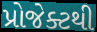
પ્રોજેક્ટથી